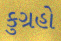
કુગ્રહો